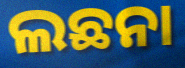
ଲଛନା